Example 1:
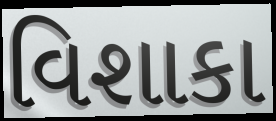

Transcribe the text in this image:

વિશાકા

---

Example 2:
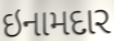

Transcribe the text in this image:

ઇનામદાર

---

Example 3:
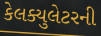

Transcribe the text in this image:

કેલક્યુલેટરની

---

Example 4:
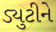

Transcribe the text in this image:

ડ્યુટીને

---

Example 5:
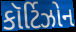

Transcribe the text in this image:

કૉર્ટિઝોન